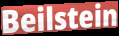
Beilstein